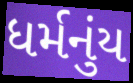
ધર્મનુંય